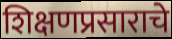
शिक्षणप्रसाराचे